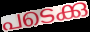
പടെക്കു